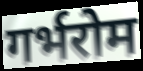
गर्भरोम